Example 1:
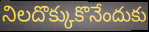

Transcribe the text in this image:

నిలదొక్కుకొనేందుకు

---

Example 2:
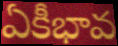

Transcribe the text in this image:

ఏకీభావ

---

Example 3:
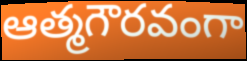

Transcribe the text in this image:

ఆత్మగౌరవంగా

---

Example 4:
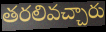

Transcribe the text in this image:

తరలివచ్చారు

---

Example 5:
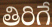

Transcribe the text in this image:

తిరిగే